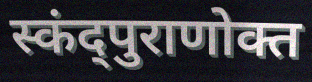
स्कंद्पुराणोक्त